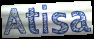
Atisa